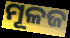
ମୂଳଜ